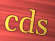
cds